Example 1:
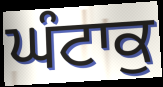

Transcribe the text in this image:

ਘੰਟਾਕੁ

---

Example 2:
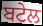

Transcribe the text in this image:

ਬਟੇਲ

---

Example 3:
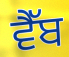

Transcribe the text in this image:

ਵੈੱਬ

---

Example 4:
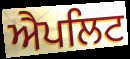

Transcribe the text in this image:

ਐਪਲਿਟ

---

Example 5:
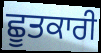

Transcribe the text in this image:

ਛੂਤਕਾਰੀ